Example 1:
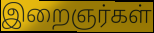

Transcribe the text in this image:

இறைஞர்கள்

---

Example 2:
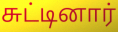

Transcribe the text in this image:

சுட்டினார்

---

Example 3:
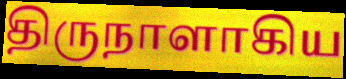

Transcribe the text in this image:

திருநாளாகிய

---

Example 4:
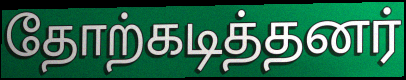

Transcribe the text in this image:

தோற்கடித்தனர்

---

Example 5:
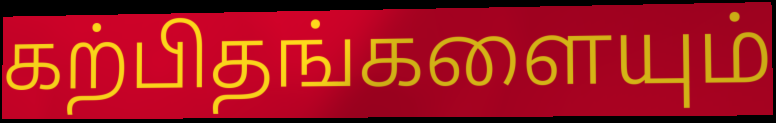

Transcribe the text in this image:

கற்பிதங்களையும்